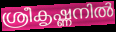
ശ്രീകൃഷ്ണനിൽ